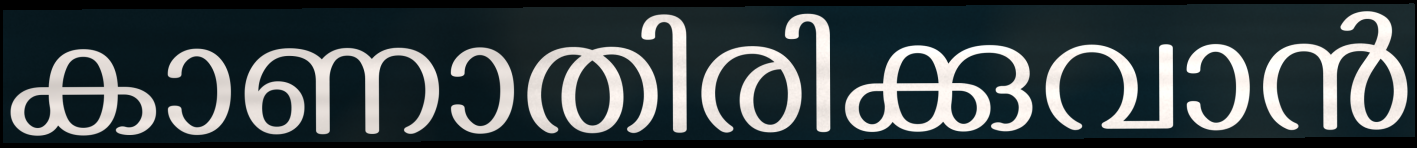
കാണാതിരിക്കുവാൻ